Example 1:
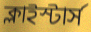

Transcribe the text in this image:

ক্লাইস্টার্স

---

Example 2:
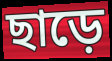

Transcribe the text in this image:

ছাড়ে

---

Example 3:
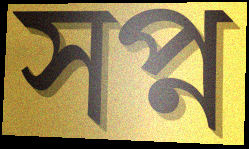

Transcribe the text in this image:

সপ্ন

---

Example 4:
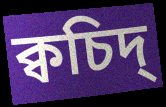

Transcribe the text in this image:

ক্বচিদ্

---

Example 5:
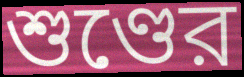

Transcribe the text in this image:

শুণ্ডের